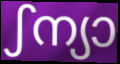
ഽന്യാ